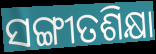
ସଙ୍ଗୀତଶିକ୍ଷା